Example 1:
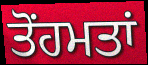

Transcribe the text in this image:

ਤੋਂਹਮਤਾਂ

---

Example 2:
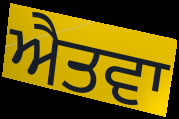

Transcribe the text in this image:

ਐਤਵਾ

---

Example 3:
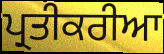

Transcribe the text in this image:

ਪ੍ਰਤੀਕਰੀਆ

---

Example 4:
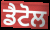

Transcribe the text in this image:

ਡੈਟੋਲ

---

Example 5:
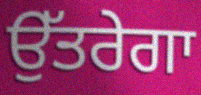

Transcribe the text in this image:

ਉੱਤਰੇਗਾ